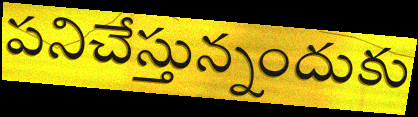
పనిచేస్తున్నందుకు